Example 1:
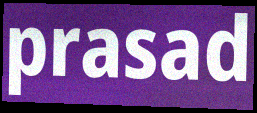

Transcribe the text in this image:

prasad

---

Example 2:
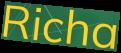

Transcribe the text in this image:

Richa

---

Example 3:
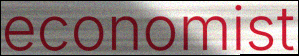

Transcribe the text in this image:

economist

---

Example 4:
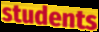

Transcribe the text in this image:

students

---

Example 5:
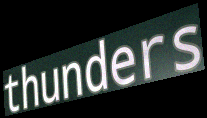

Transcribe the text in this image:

thunders